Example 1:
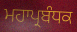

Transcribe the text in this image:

ਮਹਾਪ੍ਰਬੰਧਕ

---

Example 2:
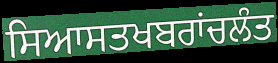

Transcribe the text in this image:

ਸਿਆਸਤਖਬਰਾਂਚਲੰਤ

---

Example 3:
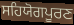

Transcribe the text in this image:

ਸਹਿਯੋਗਪੂਰਣ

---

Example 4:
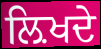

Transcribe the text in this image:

ਲ਼ਿਖਦੇ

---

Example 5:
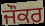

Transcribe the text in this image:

ਜੌਕਰ